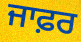
ਜਾਫ਼ਰ